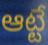
ఆట్టే